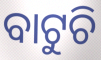
ବାଟୁଚି